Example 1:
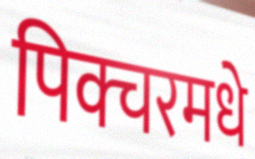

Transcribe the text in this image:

पिक्चरमधे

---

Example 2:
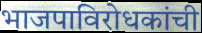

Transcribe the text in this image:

भाजपाविरोधकांची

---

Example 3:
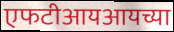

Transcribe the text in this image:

एफटीआयआयच्या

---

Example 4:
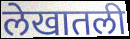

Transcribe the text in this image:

लेखातली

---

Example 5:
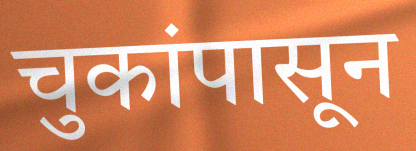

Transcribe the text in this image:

चुकांपासून